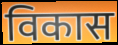
विकास